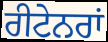
ਰੀਟੇਨਰਾਂ